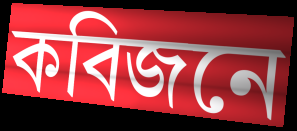
কবিজনে